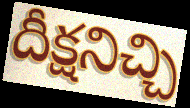
దీక్షనిచ్చి